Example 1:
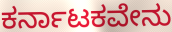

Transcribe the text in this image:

ಕರ್ನಾಟಕವೇನು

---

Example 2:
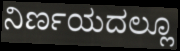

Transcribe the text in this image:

ನಿರ್ಣಯದಲ್ಲೂ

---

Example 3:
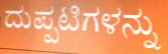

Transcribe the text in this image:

ದುಪ್ಪಟಿಗಳನ್ನು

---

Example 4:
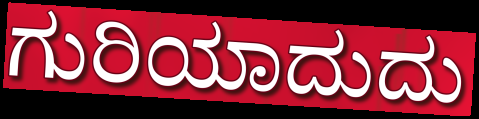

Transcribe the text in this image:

ಗುರಿಯಾದುದು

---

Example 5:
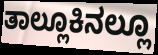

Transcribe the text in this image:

ತಾಲ್ಲೂಕಿನಲ್ಲೂ